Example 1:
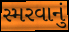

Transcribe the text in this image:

સ્મરવાનું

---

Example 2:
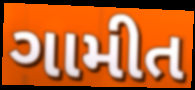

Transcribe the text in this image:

ગામીત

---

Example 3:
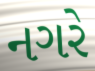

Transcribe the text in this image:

નગરે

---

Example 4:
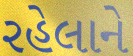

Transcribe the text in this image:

રહેલાને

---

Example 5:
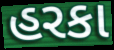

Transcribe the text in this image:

હરકા